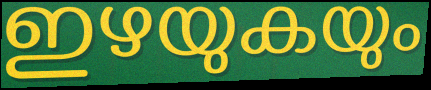
ഇഴയുകയും